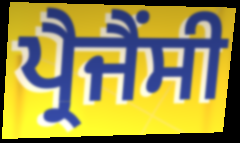
ਪ੍ਰੈਜੈਂਸੀ